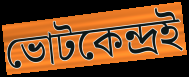
ভোটকেন্দ্রই